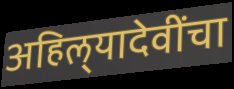
अहिल्यादेवींचा